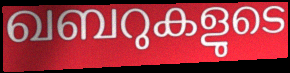
ഖബറുകളുടെ